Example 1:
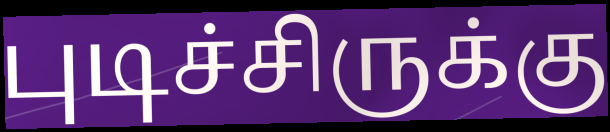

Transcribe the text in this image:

புடிச்சிருக்கு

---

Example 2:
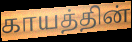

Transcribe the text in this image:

காயத்தின்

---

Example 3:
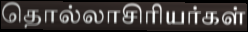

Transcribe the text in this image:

தொல்லாசிரியர்கள்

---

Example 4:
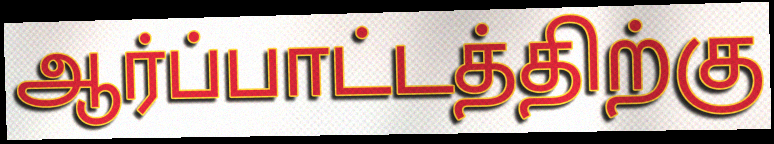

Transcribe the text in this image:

ஆர்ப்பாட்டத்திற்கு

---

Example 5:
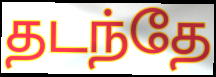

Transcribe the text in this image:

தடந்தே